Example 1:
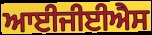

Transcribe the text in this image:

ਆਈਜੀਈਐਸ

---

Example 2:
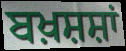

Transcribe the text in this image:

ਬਖ਼ਸ਼ਸ਼ਾਂ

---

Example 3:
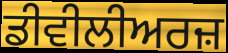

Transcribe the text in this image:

ਡੀਵੀਲੀਅਰਜ਼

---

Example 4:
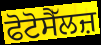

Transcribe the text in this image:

ਫੋਟੋਸੈੱਲਜ਼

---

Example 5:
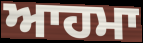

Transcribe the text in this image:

ਆਹਮਾ